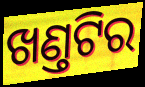
ଖଣ୍ତଟିର